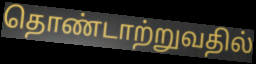
தொண்டாற்றுவதில்